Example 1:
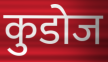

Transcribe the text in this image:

कुडोज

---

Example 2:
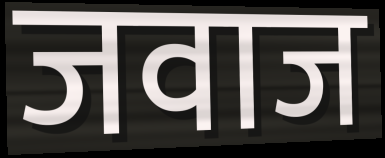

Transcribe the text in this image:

जवाज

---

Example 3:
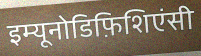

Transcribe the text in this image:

इम्यूनोडिफ़िशिएंसी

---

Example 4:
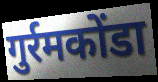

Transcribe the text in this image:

गुर्रमकोंडा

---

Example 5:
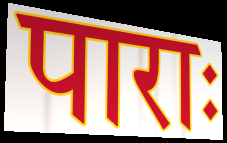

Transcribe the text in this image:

पाराः